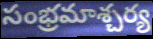
సంభ్రమాశ్చర్య